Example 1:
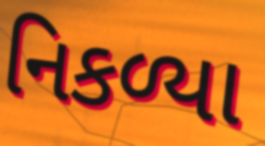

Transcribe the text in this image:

નિકળ્યા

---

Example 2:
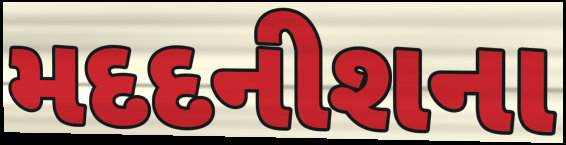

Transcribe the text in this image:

મદદનીશના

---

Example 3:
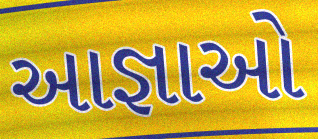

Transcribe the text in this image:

આજ્ઞાઓ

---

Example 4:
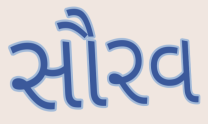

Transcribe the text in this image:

સૌરવ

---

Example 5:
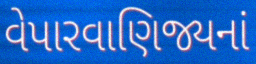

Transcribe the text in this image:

વેપારવાણિજ્યનાં